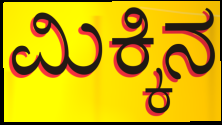
ಮಿಕ್ಕಿನ